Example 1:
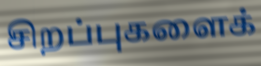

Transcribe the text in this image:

சிறப்புகளைக்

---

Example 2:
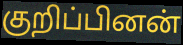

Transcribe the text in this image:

குறிப்பினன்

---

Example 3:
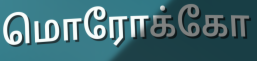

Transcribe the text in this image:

மொரோக்கோ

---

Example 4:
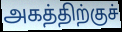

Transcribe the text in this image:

அகத்திற்குச்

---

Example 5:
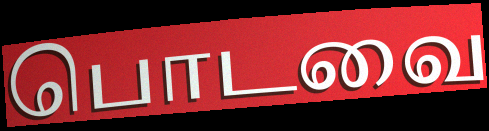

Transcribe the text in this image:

பொடவை